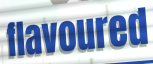
flavoured